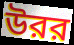
উরর